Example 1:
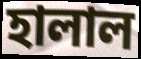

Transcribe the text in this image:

হালাল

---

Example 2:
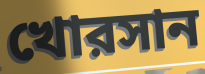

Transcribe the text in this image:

খোরসান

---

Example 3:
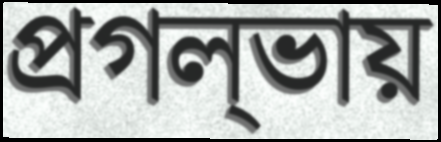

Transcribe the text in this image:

প্রগল্‌ভায়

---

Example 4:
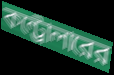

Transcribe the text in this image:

কন্ট্রোলারের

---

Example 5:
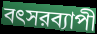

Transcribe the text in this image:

বৎসরব্যাপী